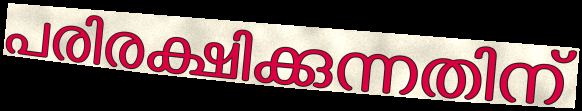
പരിരക്ഷിക്കുന്നതിന്